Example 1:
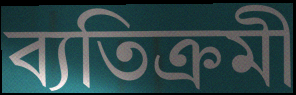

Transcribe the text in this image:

ব্যতিক্রমী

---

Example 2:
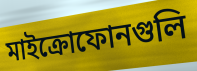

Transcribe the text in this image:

মাইক্রোফোনগুলি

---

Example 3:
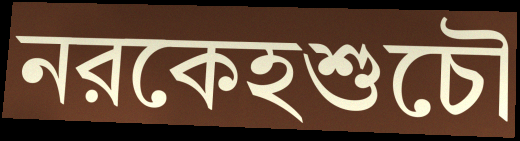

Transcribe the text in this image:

নরকেহশুচৌ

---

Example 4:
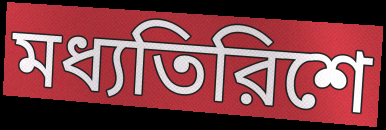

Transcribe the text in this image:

মধ্যতিরিশে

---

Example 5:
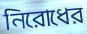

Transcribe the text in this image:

নিরোধের